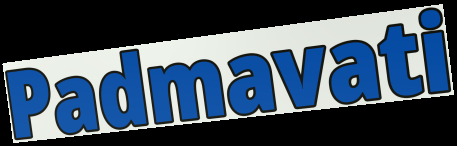
Padmavati